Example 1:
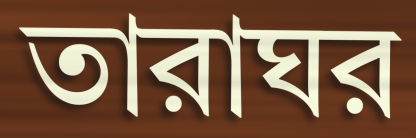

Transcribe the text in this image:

তারাঘর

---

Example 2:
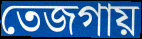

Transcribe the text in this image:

তেজগায়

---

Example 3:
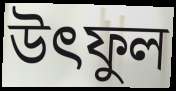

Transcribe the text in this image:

উৎফুল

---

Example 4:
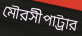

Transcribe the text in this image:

মৌরসীপাট্রার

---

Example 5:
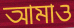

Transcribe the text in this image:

আমাও